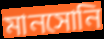
মানসোনি